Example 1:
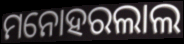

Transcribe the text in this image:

ମନୋହରଲାଲ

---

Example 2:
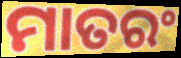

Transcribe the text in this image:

ମାତରଂ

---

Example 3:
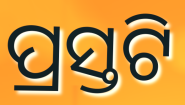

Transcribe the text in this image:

ପ୍ରସ୍ତଟି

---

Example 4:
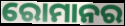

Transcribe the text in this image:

ରୋମାନର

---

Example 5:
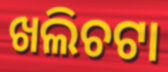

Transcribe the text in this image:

ଖଲିଚଟା